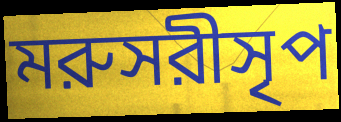
মরুসরীসৃপ